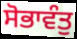
ਸੋਭਾਵੰਤੁ